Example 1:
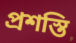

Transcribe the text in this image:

প্রশস্তি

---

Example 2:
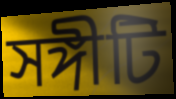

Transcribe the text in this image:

সঙ্গীটি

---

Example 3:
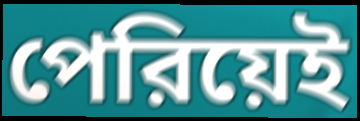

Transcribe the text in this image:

পেরিয়েই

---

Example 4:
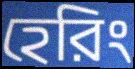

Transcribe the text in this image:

হেরিং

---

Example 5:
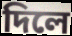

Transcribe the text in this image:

দিলে